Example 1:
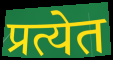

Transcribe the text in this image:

प्रत्येत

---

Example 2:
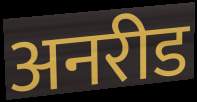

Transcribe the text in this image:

अनरीड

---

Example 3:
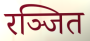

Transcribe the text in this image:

रञ्जित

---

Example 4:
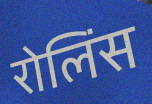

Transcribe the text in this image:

रोलिंस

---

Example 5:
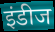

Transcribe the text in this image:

इंडीज